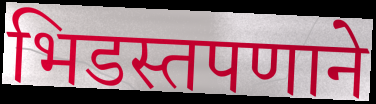
भिडस्तपणाने